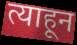
त्याहून